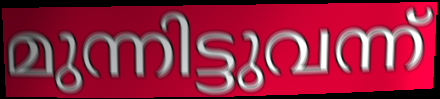
മുന്നിട്ടുവന്ന്